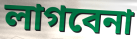
লাগবেনা